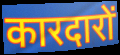
कारदारों